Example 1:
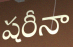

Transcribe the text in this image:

షరీనా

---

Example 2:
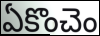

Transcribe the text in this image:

ఏకొంచెం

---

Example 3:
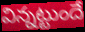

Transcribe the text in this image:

విన్నట్టుందే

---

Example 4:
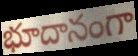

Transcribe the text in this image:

భూదానంగా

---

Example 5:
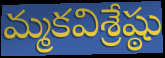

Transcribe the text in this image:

మ్మకవిశ్రేష్ఠు